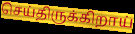
செய்திருக்கிறாய்